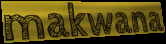
makwana